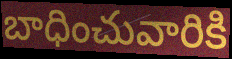
బాధించువారికి